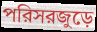
পরিসরজুড়ে